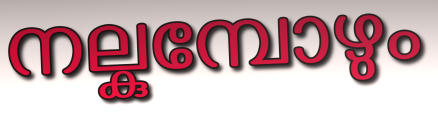
നല്കുമ്പോഴും